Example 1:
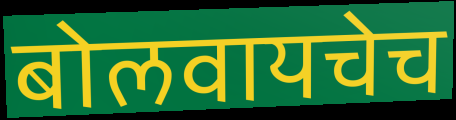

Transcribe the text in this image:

बोलवायचेच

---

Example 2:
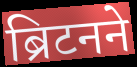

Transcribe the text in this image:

ब्रिटनने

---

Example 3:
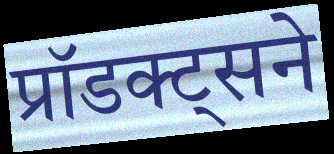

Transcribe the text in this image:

प्रॉडक्ट्सने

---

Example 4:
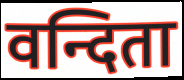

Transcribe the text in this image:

वन्दिता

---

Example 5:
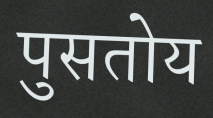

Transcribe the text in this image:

पुसतोय